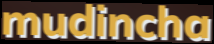
mudincha